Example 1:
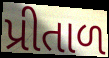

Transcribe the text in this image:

પ્રીતાળ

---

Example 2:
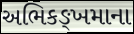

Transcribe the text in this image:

અભિકઙ્ખમાના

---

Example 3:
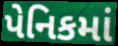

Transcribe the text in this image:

પેનિકમાં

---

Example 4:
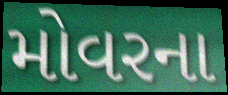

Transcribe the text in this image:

મોવરના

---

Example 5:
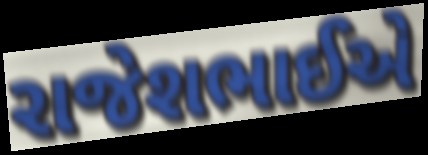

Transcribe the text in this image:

રાજેશભાઈએ